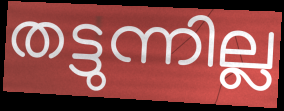
തട്ടുന്നില്ല